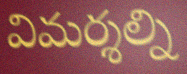
విమర్శల్ని